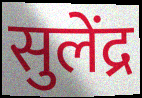
सुलेंद्र